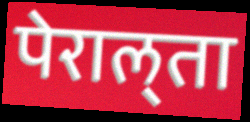
पेराल्ता